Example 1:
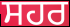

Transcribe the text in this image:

ਸਹਰ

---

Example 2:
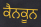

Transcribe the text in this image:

ਕੈਨਕੂਨ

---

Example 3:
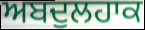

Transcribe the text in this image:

ਅਬਦੁਲਹਾਕ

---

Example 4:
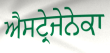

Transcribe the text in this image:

ਐਸਟ੍ਰੇਜੇਨੇਕਾ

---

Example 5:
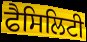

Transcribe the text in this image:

ਫੈਸਿਲਿਟੀ